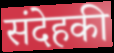
संदेहकी